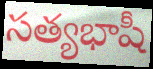
సత్యభాషీ